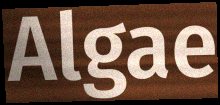
Algae